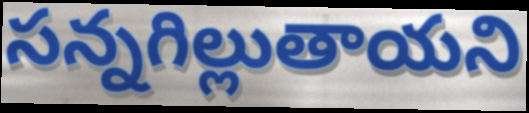
సన్నగిల్లుతాయని